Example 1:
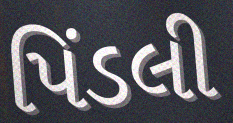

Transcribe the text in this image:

પિંડલી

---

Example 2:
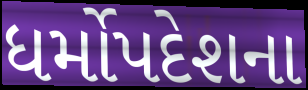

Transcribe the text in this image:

ધર્મોપદેશના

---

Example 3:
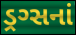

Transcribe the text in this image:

ડ્રગ્સનાં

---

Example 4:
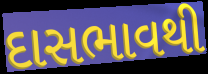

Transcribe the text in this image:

દાસભાવથી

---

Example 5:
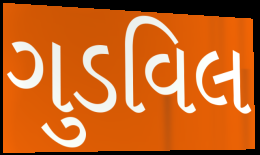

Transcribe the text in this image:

ગુડવિલ